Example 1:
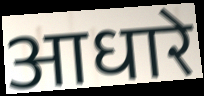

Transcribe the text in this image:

आधारे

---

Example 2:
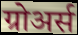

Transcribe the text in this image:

ग्रोअर्स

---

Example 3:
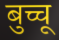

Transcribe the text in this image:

बुच्चू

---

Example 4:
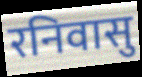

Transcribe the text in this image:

रनिवासु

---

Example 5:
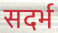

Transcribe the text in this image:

सदर्भ